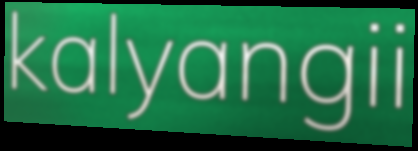
kalyangii